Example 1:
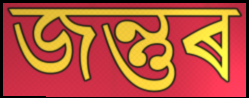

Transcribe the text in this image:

জন্তুৰ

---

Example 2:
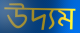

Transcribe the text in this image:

উদ্যম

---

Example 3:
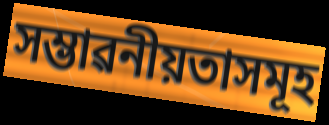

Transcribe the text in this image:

সম্ভাৱনীয়তাসমূহ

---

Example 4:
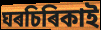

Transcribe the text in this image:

ঘৰচিৰিকাই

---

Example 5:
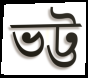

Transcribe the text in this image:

ভট্ট